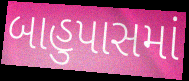
બાહુપાસમાં